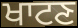
ਖਾਟਣ